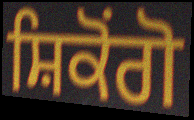
ਸ਼ਿਕੋਂਗੋ